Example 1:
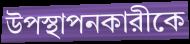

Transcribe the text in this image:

উপস্থাপনকারীকে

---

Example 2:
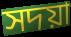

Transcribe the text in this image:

সদয়া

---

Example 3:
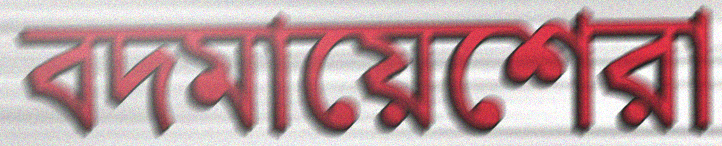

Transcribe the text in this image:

বদমায়েশেরা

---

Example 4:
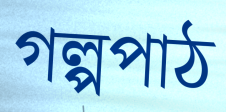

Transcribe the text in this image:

গল্পপাঠ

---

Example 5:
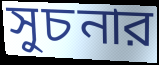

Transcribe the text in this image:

সুচনার